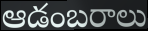
ఆడంబరాలు